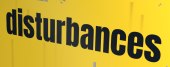
disturbances